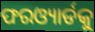
ଫରଓ୍ୟାର୍ଡକୁ